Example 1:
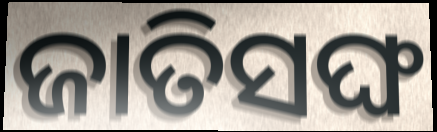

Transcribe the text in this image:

ଜାତିସଙ୍ଘ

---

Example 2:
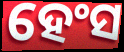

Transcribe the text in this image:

ହେଂସ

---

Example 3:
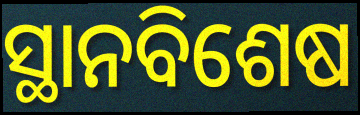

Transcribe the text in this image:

ସ୍ଥାନବିଶେଷ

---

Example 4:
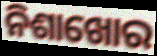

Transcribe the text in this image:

ନିଶାଖୋର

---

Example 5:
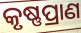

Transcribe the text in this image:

କୃଷ୍ଣପ୍ରାଣ